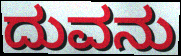
ದುವನು